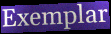
Exemplar